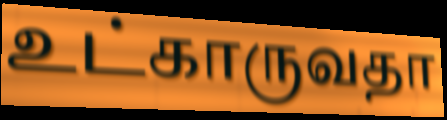
உட்காருவதா